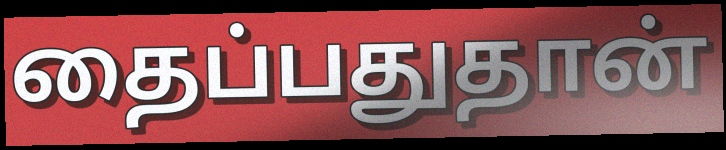
தைப்பதுதான்